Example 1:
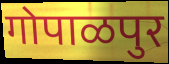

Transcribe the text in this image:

गोपाळपुर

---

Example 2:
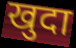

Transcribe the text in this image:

खुदा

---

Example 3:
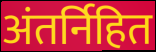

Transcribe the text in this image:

अंतर्निहित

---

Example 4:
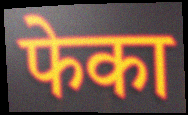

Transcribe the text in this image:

फेका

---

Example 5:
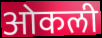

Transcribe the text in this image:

ओकली